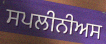
ਸਪਲੀਨੀਅਸ